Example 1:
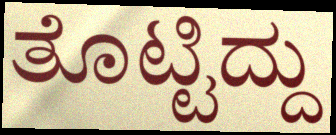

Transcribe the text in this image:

ತೊಟ್ಟಿದ್ದು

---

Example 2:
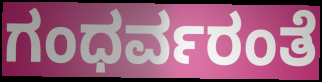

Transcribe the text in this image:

ಗಂಧರ್ವರಂತೆ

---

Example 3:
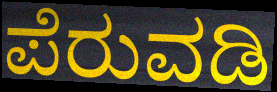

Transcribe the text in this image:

ಪೆರುವಡಿ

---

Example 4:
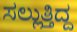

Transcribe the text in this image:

ಸಲ್ಲುತ್ತಿದ್ದ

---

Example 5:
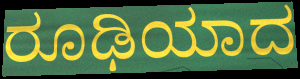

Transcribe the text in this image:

ರೂಢಿಯಾದ